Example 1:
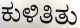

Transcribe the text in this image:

ಕುಳಿತಿತು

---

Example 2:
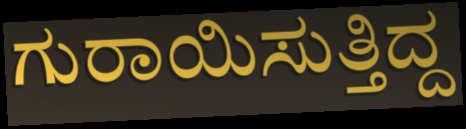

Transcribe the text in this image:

ಗುರಾಯಿಸುತ್ತಿದ್ದ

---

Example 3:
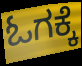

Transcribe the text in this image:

ಓಗಕ್ಕೆ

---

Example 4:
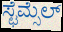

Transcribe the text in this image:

ಸ್ಟೆಮ್ಸೆಲ್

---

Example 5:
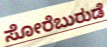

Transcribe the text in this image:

ಸೋರೆಬುರುಡೆ